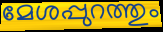
മേശപ്പുറത്തും